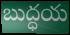
బుద్ధయ